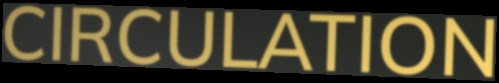
CIRCULATION